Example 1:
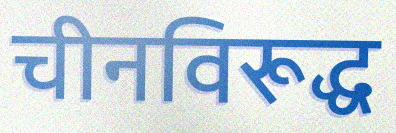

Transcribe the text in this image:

चीनविरूद्ध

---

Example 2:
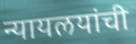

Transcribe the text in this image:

न्यायलयांची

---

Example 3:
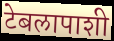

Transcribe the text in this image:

टेबलापाशी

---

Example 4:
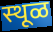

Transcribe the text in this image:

स्थूळ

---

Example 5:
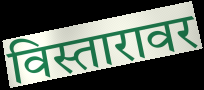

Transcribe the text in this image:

विस्तारावर